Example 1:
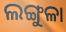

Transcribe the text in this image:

ଲଙ୍ଗୁଳା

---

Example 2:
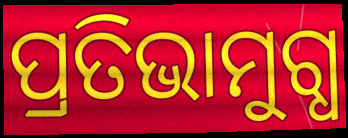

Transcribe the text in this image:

ପ୍ରତିଭାମୁଗ୍ଧ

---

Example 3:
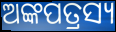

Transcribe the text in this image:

ଅଙ୍କପତ୍ରସ୍ୟ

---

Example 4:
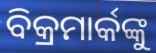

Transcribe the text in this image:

ବିକ୍ରମାର୍କଙ୍କୁ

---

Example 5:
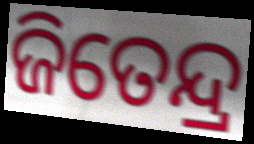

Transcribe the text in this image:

ଜିତେନ୍ଦ୍ର